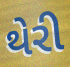
થેરી